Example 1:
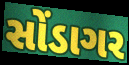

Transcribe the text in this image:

સોંડાગર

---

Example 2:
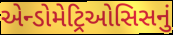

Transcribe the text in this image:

એન્ડોમેટ્રિઓસિસનું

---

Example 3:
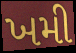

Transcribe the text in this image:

ખમી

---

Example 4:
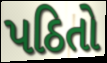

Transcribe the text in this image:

પઠિતો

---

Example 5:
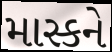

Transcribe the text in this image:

માસ્કને